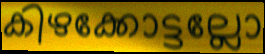
കിഴക്കോട്ടല്ലോ